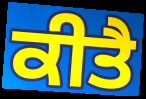
ਕੀਤੈ